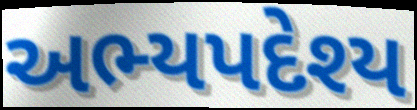
અભ્યપદેશ્ય